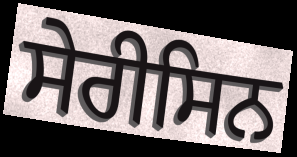
ਸੇਰੀਸਿਨ